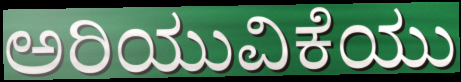
ಅರಿಯುವಿಕೆಯು